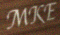
MKE